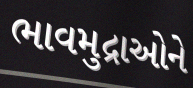
ભાવમુદ્રાઓને